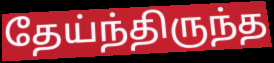
தேய்ந்திருந்த